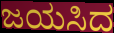
ಜಯಸಿದ